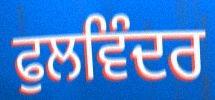
ਫੁਲਵਿੰਦਰ